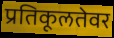
प्रतिकूलतेवर